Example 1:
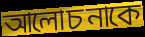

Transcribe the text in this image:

আলোচনাকে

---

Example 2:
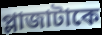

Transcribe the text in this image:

প্লাজাটাকে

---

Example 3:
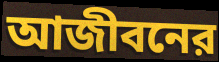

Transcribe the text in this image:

আজীবনের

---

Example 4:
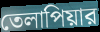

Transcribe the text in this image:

তেলাপিয়ার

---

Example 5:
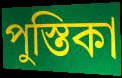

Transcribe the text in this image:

পুস্তিকা